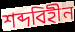
শব্দবিহীন